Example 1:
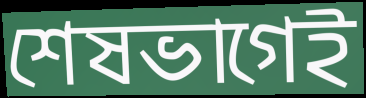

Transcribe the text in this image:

শেষভাগেই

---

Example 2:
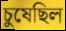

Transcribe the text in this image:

চুষেছিল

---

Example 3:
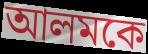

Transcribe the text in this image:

আলমকে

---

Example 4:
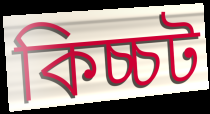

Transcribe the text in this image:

কিচ্চট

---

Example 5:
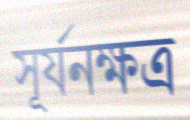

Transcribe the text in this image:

সূর্যনক্ষত্র